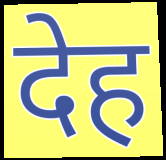
देह